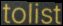
tolist